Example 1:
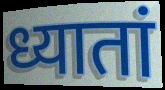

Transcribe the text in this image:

ध्यातां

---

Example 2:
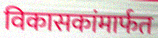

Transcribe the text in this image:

विकासकांमार्फत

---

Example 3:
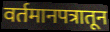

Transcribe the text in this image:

वर्तमानपत्रातून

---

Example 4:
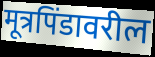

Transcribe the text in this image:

मूत्रपिंडावरील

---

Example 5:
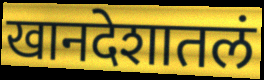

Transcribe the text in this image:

खानदेशातलं